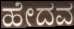
ಹೇದವ